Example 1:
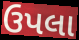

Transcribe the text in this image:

ઉપલા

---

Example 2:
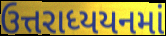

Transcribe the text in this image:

ઉત્તરાધ્યયનમાં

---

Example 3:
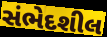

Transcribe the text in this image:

સંભેદશીલ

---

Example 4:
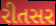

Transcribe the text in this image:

રીતસર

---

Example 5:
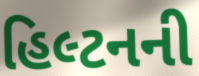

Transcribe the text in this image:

હિલ્ટનની